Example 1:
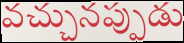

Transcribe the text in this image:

వచ్చునప్పుడు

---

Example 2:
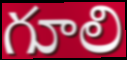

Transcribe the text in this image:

గూలి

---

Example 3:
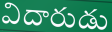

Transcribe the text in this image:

విదారుడు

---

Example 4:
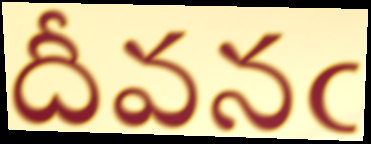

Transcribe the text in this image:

దీవనఁ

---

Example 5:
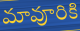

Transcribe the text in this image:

మావూరికి